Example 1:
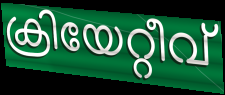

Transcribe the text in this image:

ക്രിയേറ്റീവ്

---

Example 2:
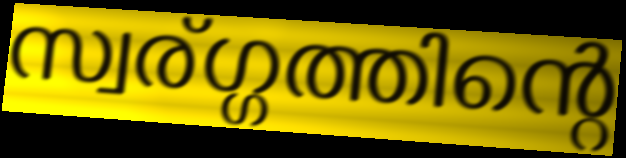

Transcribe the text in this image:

സ്വര്ഗ്ഗത്തിന്റെ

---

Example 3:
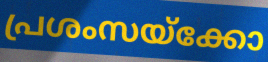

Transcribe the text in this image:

പ്രശംസയ്ക്കോ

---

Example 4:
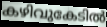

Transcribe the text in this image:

കഴിവുകേടിൽ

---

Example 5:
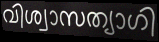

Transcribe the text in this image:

വിശ്വാസത്യാഗി